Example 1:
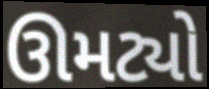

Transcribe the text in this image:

ઊમટ્યો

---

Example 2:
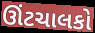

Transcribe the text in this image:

ઊંટચાલકો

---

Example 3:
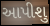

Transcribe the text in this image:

આપીશુ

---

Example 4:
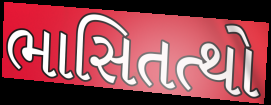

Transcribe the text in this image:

ભાસિતત્થો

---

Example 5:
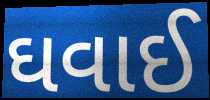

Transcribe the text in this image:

ઘવાઈ